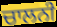
ਚਾਲਨੀ